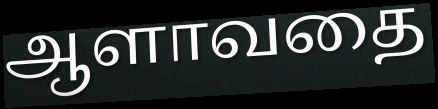
ஆளாவதை